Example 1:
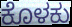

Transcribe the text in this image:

ಕೊಳಕು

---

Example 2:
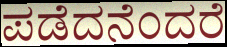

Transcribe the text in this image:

ಪಡೆದನೆಂದರೆ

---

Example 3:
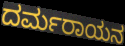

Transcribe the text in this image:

ದರ್ಮರಾಯನ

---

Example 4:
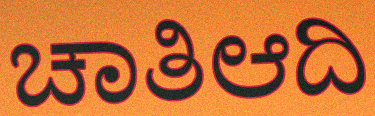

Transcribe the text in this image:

ಚಾತಿಆದಿ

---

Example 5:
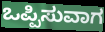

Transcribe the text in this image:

ಒಪ್ಪಿಸುವಾಗ